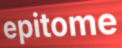
epitome